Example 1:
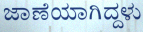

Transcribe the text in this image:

ಜಾಣೆಯಾಗಿದ್ದಳು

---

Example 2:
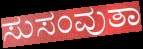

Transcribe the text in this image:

ಸುಸಂವುತಾ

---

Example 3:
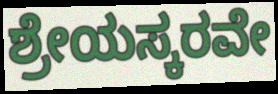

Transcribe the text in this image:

ಶ್ರೇಯಸ್ಕರವೇ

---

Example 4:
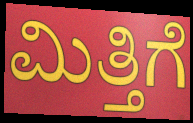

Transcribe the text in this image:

ಮಿತ್ತಿಗೆ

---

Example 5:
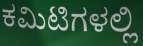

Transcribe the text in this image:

ಕಮಿಟಿಗಳಲ್ಲಿ